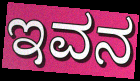
ಇವನ